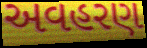
અવહરણ